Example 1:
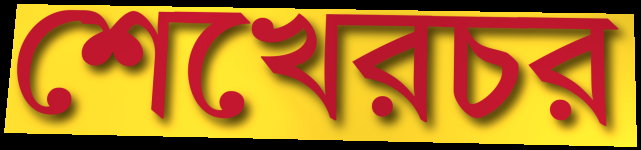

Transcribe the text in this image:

শেখেরচর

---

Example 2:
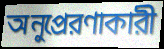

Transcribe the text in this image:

অনুপ্রেরণাকারী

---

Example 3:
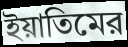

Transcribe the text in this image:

ইয়াতিমের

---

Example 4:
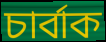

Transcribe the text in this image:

চার্বাক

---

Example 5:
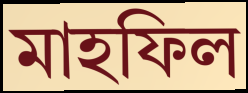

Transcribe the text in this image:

মাহফিল